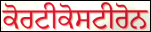
ਕੋਰਟੀਕੋਸਟੀਰੋਨ